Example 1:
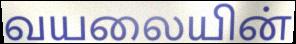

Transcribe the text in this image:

வயலையின்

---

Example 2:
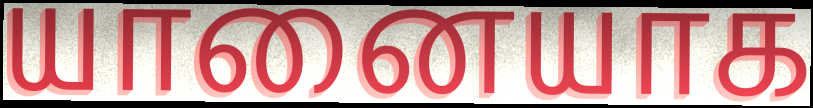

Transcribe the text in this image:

யானையாக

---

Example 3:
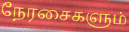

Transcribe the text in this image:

நேரசைகளும்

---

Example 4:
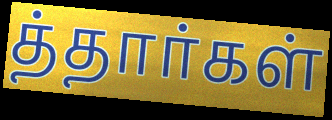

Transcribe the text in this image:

த்தார்கள்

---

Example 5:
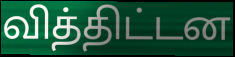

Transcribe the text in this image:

வித்திட்டன